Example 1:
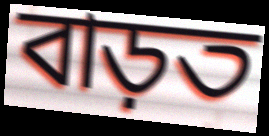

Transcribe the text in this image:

বাড়ত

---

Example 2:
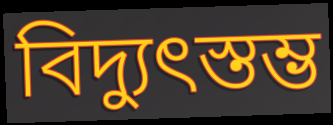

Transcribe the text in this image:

বিদ্যুৎস্তম্ভ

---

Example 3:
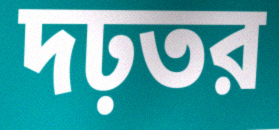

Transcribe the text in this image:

দঢ়তর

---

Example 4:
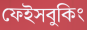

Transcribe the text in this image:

ফেইসবুকিং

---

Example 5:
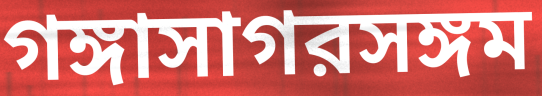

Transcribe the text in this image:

গঙ্গাসাগরসঙ্গম